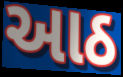
આઠ